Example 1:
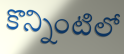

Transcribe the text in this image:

కొన్నింటిలో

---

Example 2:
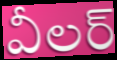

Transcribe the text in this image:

వీలర్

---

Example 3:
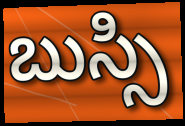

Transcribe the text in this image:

బుస్సి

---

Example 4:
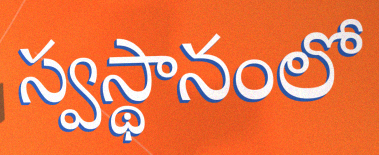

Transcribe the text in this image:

స్వస్థానంలో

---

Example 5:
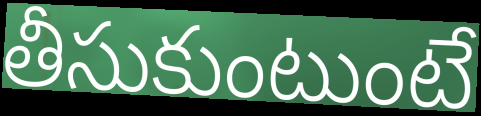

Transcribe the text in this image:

తీసుకుంటుంటే